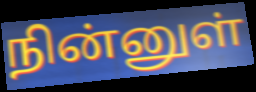
நின்னுள்